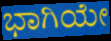
ಭಾಗಿಯೇ